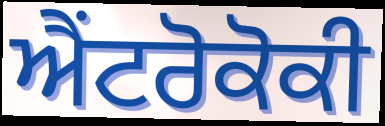
ਐਂਟਰੋਕੋਕੀ